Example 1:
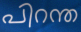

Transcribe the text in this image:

പിറന്ത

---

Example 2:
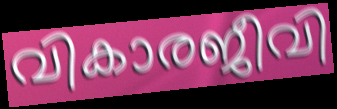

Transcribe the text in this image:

വികാരജീവി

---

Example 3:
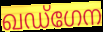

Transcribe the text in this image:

ഖഡ്ഗേന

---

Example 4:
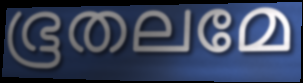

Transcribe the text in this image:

ഭൂതലമേ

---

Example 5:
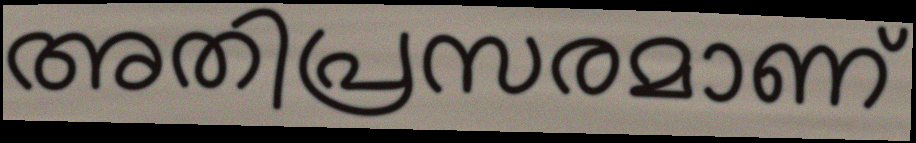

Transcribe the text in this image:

അതിപ്രസരമാണ്